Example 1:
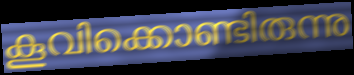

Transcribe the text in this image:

കൂവിക്കൊണ്ടിരുന്നു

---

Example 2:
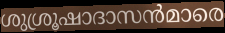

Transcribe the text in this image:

ശുശ്രൂഷാദാസൻമാരെ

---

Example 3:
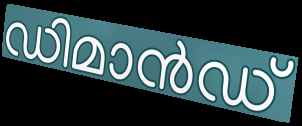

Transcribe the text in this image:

ഡിമാൻഡ്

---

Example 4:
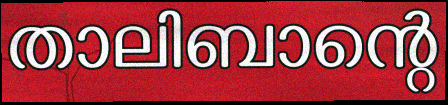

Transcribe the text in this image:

താലിബാന്റെ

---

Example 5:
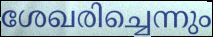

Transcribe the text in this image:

ശേഖരിച്ചെന്നും